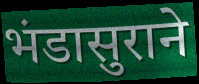
भंडासुराने